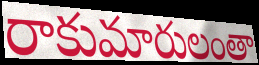
రాకుమారులంతా